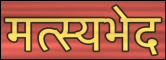
मत्स्यभेद